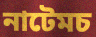
নাটেমচ